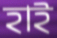
হাই